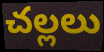
చల్లలు